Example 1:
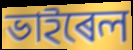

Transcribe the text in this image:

ভাইৰেল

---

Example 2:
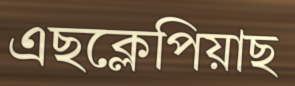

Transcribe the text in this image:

এছক্লেপিয়াছ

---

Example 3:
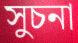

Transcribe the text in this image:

সুচনা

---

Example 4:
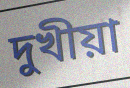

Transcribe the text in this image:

দুখীয়া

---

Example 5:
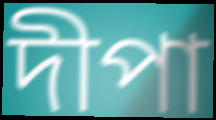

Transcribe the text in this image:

দীপা